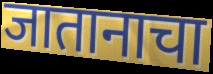
जातानाचा